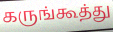
கருங்கூத்து